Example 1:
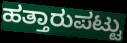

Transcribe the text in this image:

ಹತ್ತಾರುಪಟ್ಟು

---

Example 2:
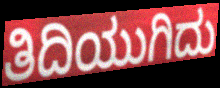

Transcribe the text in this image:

ತಿದಿಯುಗಿದು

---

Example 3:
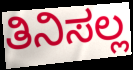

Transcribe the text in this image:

ತಿನಿಸಲ್ಲ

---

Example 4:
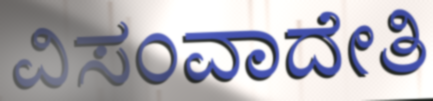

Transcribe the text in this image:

ವಿಸಂವಾದೇತಿ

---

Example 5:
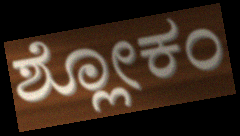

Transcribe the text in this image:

ಶ್ಲೋಕಂ